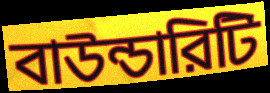
বাউন্ডারিটি